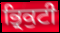
ਭ੍ਰਿਕੁਟੀ